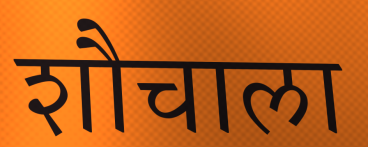
शौचाला